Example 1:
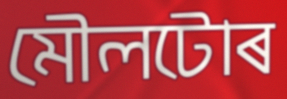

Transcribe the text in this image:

মৌলটোৰ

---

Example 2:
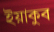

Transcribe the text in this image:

ইয়াকুব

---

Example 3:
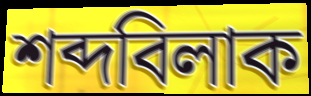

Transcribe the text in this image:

শব্দবিলাক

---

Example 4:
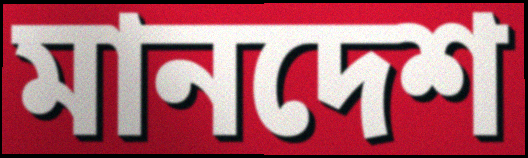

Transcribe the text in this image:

মানদেশ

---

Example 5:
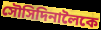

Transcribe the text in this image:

সৌসিদিনালৈকে